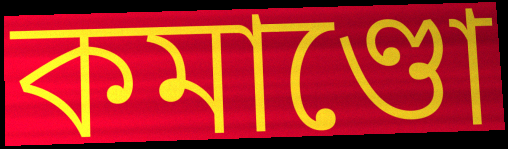
কমাণ্ডো